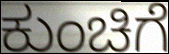
ಕುಂಚಿಗೆ